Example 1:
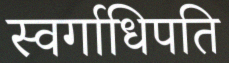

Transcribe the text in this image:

स्वर्गाधिपति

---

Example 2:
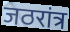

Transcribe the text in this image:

जठरांत्र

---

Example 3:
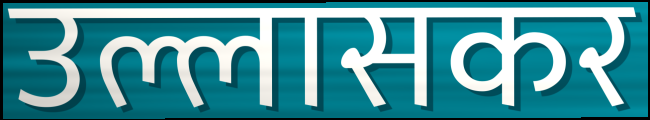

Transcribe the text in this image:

उल्लासकर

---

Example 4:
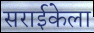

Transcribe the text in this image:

सराईकेला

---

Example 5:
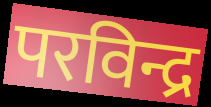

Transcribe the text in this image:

परविन्द्र